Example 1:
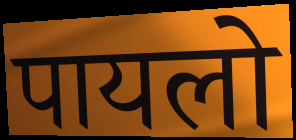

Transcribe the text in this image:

पायलो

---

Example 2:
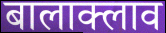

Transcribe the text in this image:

बालाक्लाव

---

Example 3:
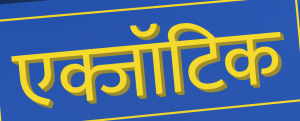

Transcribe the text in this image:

एक्जॉटिक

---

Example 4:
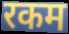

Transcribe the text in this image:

रकम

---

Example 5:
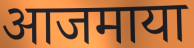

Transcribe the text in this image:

आजमाया